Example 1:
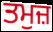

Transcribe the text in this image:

ਤਮੁਜ਼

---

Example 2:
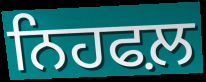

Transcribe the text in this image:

ਨਿਹਫਲ਼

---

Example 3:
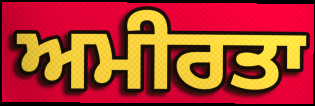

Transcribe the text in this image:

ਅਮੀਰਤਾ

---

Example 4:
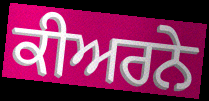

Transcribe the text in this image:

ਕੀਅਰਨੇ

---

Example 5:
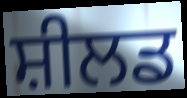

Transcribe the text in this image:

ਸ਼ੀਲਡ